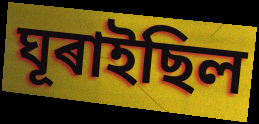
ঘূৰাইছিল